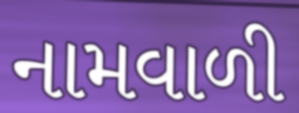
નામવાળી